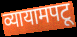
व्यायामपटू